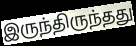
இருந்திருந்தது